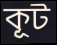
কূট